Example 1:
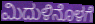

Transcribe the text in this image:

ಮಿದುಳಿನೊಳಗೆ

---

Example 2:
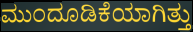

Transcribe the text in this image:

ಮುಂದೂಡಿಕೆಯಾಗಿತ್ತು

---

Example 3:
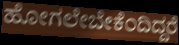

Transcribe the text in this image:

ಹೋಗಲೇಬೇಕೆಂದಿದ್ದರೆ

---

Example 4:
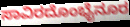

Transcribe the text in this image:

ಸಾವಿರದೊಂಭೈನೂರ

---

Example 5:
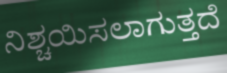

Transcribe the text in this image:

ನಿಶ್ಚಯಿಸಲಾಗುತ್ತದೆ